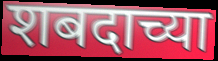
शबदाच्या